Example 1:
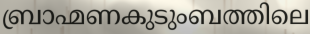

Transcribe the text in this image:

ബ്രാഹ്മണകുടുംബത്തിലെ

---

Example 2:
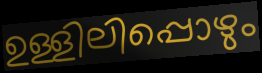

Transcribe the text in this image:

ഉള്ളിലിപ്പൊഴും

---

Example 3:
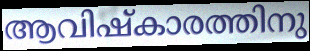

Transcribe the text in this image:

ആവിഷ്കാരത്തിനു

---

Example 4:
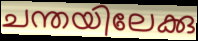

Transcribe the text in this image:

ചന്തയിലേക്കു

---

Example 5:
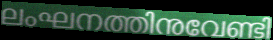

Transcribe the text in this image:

ലംഘനത്തിനുവേണ്ടി